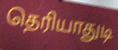
தெரியாதுடி